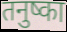
तनुष्का